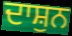
ਦਾਸ਼ੁਨ